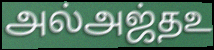
அல்அஜ்தஉ